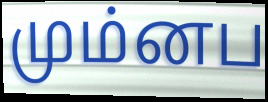
மும்னப